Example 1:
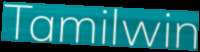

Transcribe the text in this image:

Tamilwin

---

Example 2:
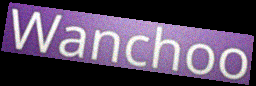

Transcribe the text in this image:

Wanchoo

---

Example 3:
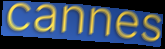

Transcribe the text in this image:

cannes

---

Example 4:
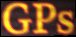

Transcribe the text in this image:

GPs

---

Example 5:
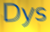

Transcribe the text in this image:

Dys